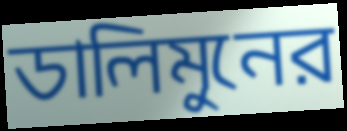
ডালিমুনের